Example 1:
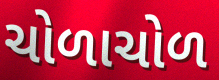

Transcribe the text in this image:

ચોળાચોળ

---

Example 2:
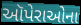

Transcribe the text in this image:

ઑપેરાઓના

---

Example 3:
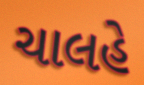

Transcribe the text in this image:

ચાલહે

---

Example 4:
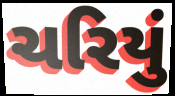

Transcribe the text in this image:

ચરિયું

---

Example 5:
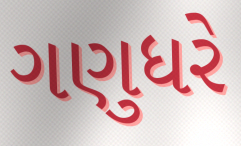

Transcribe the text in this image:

ગણુધરે